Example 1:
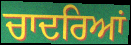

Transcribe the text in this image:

ਚਾਦਰਿਆਂ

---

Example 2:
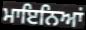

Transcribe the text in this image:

ਮਾਇਨਿਆਂ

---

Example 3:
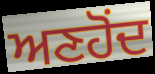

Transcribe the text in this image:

ਅਣਹੋਂਦ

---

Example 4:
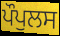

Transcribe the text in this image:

ਪੌਪੁਲਸ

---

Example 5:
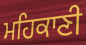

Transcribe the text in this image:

ਮਹਿਕਾਣੀ